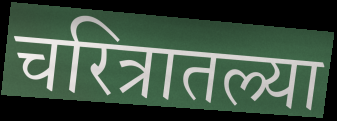
चरित्रातल्या